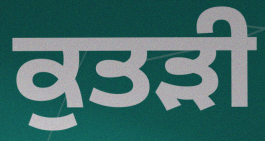
ਕੁਤੜੀ